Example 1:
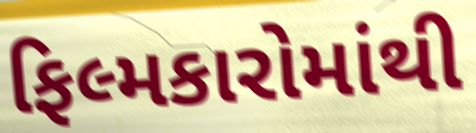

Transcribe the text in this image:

ફિલ્મકારોમાંથી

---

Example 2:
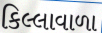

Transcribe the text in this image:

કિલ્લાવાળા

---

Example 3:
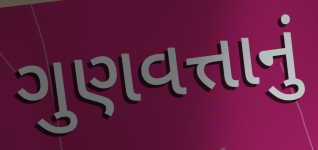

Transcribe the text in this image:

ગુણવત્તાનું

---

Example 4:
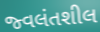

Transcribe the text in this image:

જ્વલંતશીલ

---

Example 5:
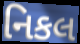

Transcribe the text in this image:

નિકલ